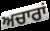
ਅਚਾਰਾਂ